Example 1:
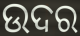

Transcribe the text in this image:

ଉଦର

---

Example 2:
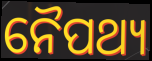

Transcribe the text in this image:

ନୈପଥ୍ୟ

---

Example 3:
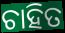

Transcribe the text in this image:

ଚାହିତ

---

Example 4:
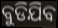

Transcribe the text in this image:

ବୁଡିଯିବ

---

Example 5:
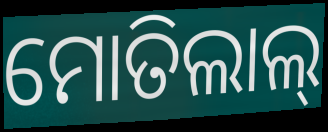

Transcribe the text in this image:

ମୋତିଲାଲ୍